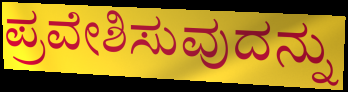
ಪ್ರವೇಶಿಸುವುದನ್ನು